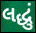
લદ્ધું